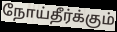
நோய்தீர்க்கும்